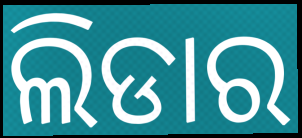
ଲିଡାର